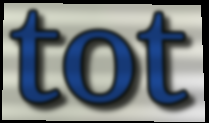
tot